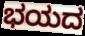
ಭಯದ